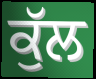
ਕੁੱਲ